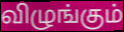
விழுங்கும்